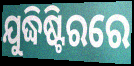
ଯୁଦ୍ଧିଷ୍ଟିରରେ